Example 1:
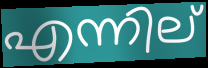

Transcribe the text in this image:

എന്നില്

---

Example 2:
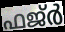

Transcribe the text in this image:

ഫജ്ർ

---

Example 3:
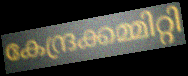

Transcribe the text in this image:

കേന്ദ്രക്കമ്മിറ്റി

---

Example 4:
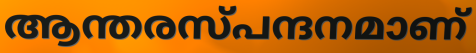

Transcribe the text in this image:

ആന്തരസ്പന്ദനമാണ്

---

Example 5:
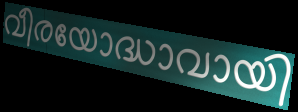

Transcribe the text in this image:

വീരയോദ്ധാവായി